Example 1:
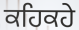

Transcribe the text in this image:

ਕਹਿਕਹੇ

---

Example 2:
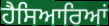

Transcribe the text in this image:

ਹੈਸਿਆਰਿਆਂ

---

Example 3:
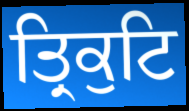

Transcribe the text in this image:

ਤ੍ਰਿਕੁਟਿ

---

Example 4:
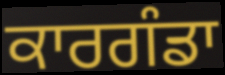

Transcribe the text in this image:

ਕਾਰਗੰਡਾ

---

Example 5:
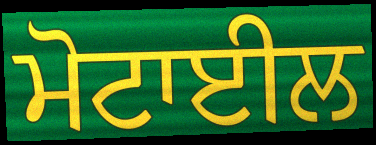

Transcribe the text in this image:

ਮੋਟਾਈਲ